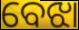
ବେଝା